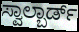
ಸ್ವಾಲ್ಬಾರ್ಡ್